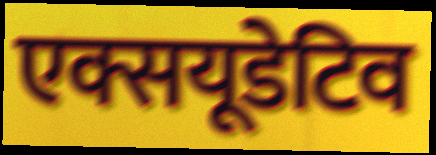
एक्सयूडेटिव